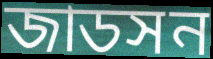
জাডসন